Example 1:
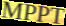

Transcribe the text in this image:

MPPT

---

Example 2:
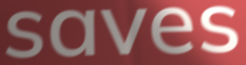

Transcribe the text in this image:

saves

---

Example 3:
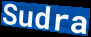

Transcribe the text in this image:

Sudra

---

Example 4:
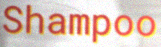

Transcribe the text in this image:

Shampoo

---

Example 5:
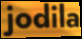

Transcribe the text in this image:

jodila